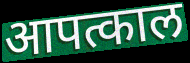
आपत्काल